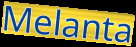
Melanta